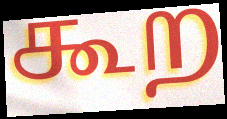
கூற